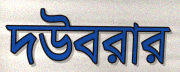
দউবরার